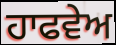
ਹਾਫਵੇਅ